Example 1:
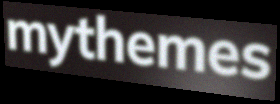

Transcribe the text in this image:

mythemes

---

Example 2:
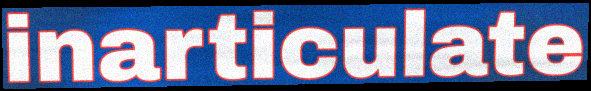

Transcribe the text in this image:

inarticulate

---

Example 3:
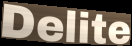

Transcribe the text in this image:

Delite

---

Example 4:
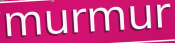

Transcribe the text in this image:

murmur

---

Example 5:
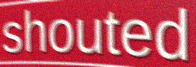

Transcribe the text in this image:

shouted